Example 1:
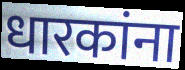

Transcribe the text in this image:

धारकांना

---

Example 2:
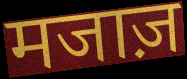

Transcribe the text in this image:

मजाज़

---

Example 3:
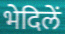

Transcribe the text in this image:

भेदिलें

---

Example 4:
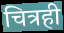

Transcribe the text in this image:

चित्रही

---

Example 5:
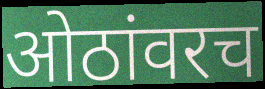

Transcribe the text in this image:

ओठांवरच